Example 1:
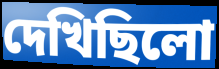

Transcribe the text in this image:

দেখিছিলো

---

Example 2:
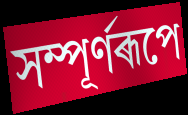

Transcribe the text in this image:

সম্পূৰ্ণৰূপে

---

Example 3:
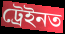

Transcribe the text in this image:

ট্ৰেইনত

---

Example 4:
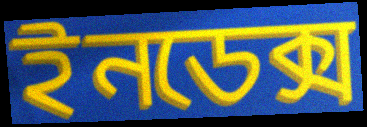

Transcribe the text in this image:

ইনডেক্স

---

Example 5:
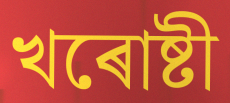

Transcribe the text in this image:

খৰোষ্টী